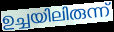
ഉച്ചയിലിരുന്ന്